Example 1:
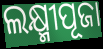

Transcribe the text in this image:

ଲକ୍ଷ୍ମୀପୂଜା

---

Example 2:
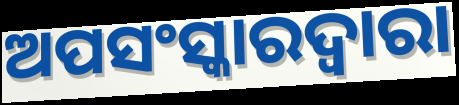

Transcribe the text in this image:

ଅପସଂସ୍କାରଦ୍ୱାରା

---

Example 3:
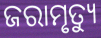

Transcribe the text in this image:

ଜରାମୃତ୍ୟୁ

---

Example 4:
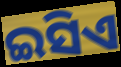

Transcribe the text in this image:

ଇସିଏ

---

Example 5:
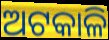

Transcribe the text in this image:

ଅଟକାଳି